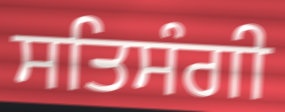
ਸਤਿਸੰਗੀ